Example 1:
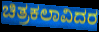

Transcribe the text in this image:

ಚಿತ್ರಕಲಾವಿದರ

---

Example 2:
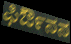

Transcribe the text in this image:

ಫಿರ್ಔನನ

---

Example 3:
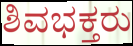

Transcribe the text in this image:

ಶಿವಭಕ್ತರು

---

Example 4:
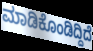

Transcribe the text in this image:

ಮಾಡಿಕೊಂಡಿದ್ದಿದೆ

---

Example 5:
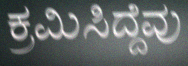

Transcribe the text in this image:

ಕ್ರಮಿಸಿದ್ದೆವು